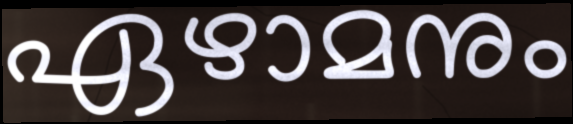
ഏഴാമനും